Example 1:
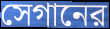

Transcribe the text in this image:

সেগানের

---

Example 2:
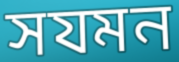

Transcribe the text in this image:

সযমন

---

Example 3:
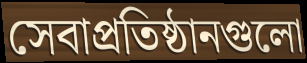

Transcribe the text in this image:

সেবাপ্রতিষ্ঠানগুলো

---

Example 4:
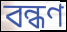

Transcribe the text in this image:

বন্ধণ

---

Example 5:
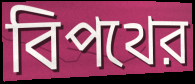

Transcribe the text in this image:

বিপথের